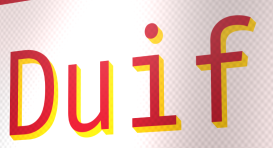
Duif